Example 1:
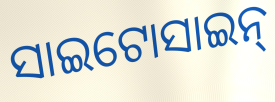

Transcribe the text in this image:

ସାଇଟୋସାଇନ୍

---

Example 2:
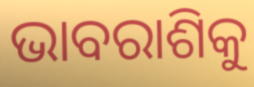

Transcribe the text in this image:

ଭାବରାଶିକୁ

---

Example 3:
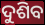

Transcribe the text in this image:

ଦୁଶିବ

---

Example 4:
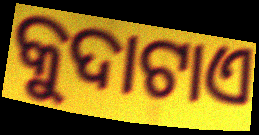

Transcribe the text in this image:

କୁଦାଟାଏ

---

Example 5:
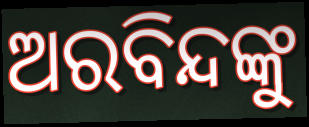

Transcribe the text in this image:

ଅରବିନ୍ଦଙ୍କୁ